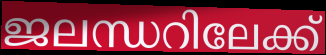
ജലന്ധറിലേക്ക്